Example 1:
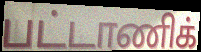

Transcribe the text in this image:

பட்டாணிக்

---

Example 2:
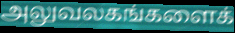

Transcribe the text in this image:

அலுவலகங்களைக்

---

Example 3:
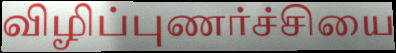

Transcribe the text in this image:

விழிப்புணர்ச்சியை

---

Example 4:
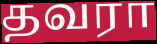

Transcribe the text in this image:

தவரா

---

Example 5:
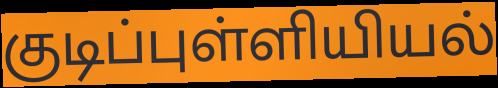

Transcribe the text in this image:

குடிப்புள்ளியியல்